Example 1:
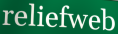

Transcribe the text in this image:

reliefweb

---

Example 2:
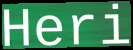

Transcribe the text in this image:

Heri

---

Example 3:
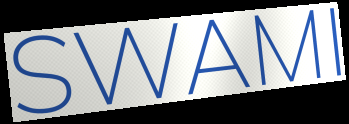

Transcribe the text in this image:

SWAMI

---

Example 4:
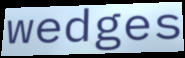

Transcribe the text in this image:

wedges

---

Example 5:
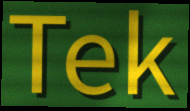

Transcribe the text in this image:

Tek